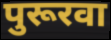
पुरूरवा